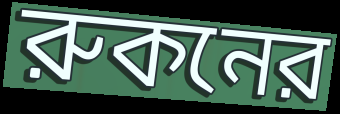
রুকনের